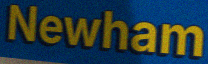
Newham